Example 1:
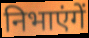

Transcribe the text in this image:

निभाएंगें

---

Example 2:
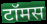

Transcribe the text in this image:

टॉमस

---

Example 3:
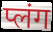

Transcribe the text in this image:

प्लंग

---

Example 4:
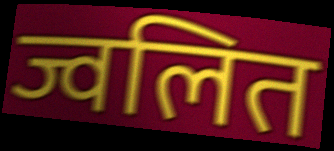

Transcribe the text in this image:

ज्वलित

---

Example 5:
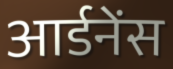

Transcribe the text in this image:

आर्डनेंस